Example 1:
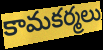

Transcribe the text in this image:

కామకర్మలు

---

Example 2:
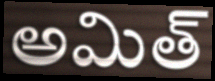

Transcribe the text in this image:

అమిత్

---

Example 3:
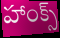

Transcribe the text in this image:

హాంక్స్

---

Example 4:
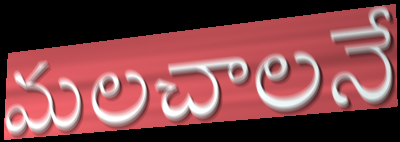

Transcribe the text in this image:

మలచాలనే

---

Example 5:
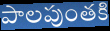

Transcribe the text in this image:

పాలపుంతకి